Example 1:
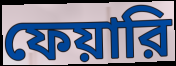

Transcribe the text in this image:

ফেয়ারি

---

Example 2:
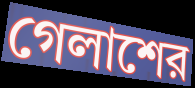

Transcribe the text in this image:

গেলাশের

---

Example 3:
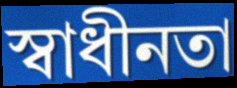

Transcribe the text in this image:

স্বাধীনতা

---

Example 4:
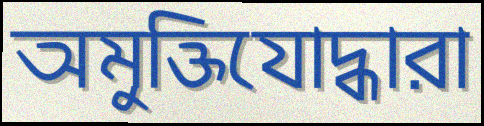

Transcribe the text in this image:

অমুক্তিযোদ্ধারা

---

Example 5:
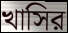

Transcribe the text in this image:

খাসির